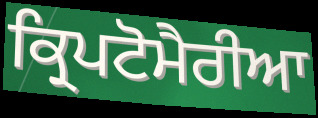
ਕ੍ਰਿਪਟੋਮੈਰੀਆ